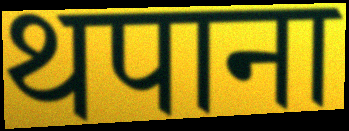
थपाना